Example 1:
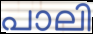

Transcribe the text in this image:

പാലി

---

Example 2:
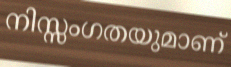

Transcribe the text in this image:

നിസ്സംഗതയുമാണ്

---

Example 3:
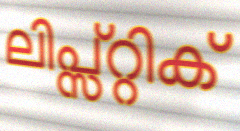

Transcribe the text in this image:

ലിപ്സ്റ്റിക്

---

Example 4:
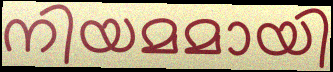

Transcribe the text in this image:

നിയമമായി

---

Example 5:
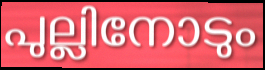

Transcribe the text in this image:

പുല്ലിനോടും